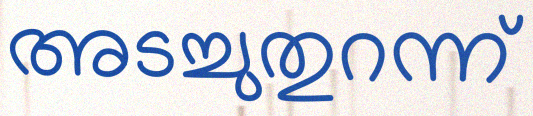
അടച്ചുതുറന്ന്